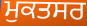
ਮੁਕਤਸਰ